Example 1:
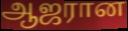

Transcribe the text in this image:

ஆஜரான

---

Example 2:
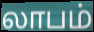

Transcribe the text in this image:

லாபம்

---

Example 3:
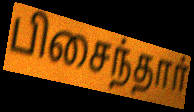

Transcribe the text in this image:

பிசைந்தார்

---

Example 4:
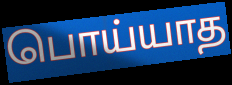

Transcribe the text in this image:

பொய்யாத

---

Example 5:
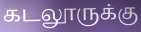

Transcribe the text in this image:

கடலூருக்கு